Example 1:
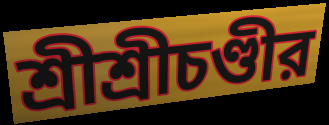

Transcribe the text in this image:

শ্রীশ্রীচণ্ডীর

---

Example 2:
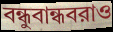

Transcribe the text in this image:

বন্ধুবান্ধবরাও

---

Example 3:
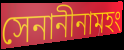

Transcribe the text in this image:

সেনানীনামহং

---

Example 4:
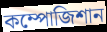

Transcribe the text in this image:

কম্পোজিশান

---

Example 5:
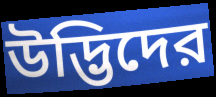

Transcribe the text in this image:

উদ্ভিদের